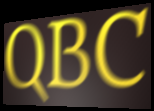
QBC